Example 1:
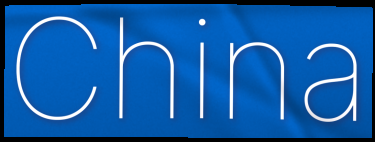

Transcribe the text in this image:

China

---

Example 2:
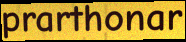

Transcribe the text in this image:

prarthonar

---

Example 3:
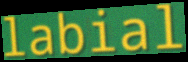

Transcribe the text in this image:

labial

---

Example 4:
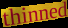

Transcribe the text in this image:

thinned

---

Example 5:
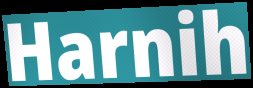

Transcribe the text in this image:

Harnih